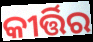
କୀର୍ତ୍ତିର